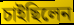
চাইছিলেন